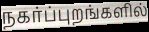
நகர்ப்புறங்களில்